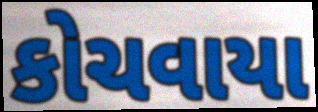
કોચવાયા